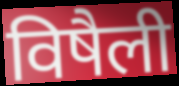
विषैली